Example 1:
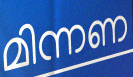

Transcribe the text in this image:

മിന്നണ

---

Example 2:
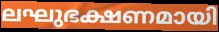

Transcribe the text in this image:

ലഘുഭക്ഷണമായി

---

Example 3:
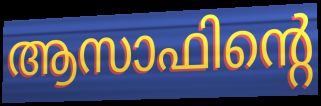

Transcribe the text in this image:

ആസാഫിന്റെ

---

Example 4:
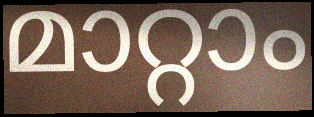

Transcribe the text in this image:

മാറ്റാം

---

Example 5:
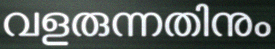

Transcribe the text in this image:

വളരുന്നതിനും